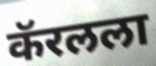
कॅरलला